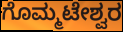
ಗೊಮ್ಮಟೇಶ್ವರ